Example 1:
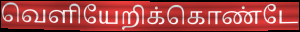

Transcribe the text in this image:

வெளியேறிக்கொண்டே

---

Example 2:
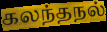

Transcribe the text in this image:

கலந்தநல்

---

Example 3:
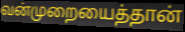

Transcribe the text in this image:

வன்முறையைத்தான்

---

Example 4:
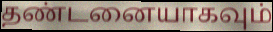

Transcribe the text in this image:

தண்டனையாகவும்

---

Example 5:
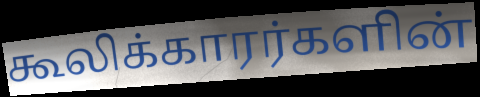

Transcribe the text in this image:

கூலிக்காரர்களின்